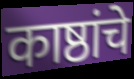
काष्ठांचे